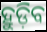
ହୁଡ଼ିବ